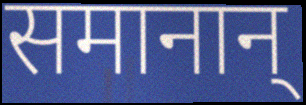
समानान्